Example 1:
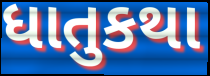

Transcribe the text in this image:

ધાતુકથા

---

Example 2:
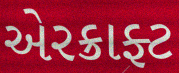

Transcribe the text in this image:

એરક્રાફ્ટ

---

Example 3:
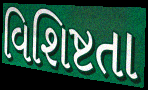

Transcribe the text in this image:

વિશિષ્ટતા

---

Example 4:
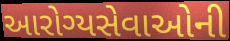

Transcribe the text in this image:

આરોગ્યસેવાઓની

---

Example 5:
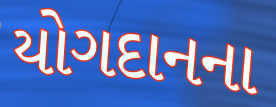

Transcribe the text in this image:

યોગદાનના